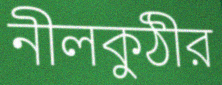
নীলকুঠীর